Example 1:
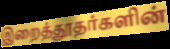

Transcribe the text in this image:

இறைத்தூதர்களின்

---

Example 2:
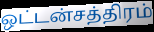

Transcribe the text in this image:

ஒட்டன்சத்திரம்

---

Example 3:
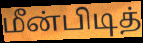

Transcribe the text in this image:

மீன்பிடித்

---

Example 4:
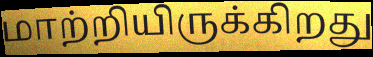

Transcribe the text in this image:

மாற்றியிருக்கிறது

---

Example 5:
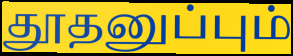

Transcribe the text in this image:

தூதனுப்பும்